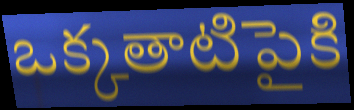
ఒక్కతాటిపైకి